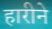
हारीने